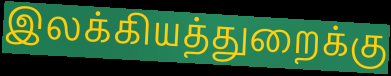
இலக்கியத்துறைக்கு